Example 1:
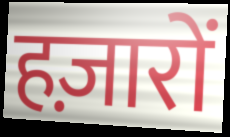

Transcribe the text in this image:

हज़ारों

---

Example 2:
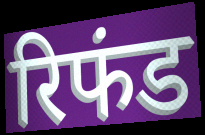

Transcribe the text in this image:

रिफंड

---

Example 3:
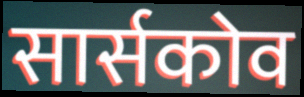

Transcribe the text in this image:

सार्सकोव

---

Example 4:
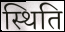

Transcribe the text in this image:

स्थिति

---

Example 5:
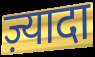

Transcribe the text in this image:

ज़्यादा